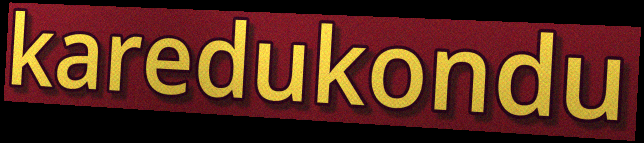
karedukondu